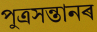
পুত্ৰসন্তানৰ